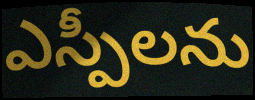
ఎస్పీలను